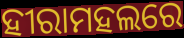
ହୀରାମହଲରେ